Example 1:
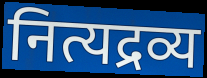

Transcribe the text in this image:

नित्यद्रव्य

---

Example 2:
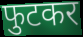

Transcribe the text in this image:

फुटकर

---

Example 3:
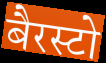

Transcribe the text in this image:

बैरस्टो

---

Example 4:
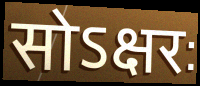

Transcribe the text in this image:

सोऽक्षरः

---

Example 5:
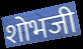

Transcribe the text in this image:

शोभजी